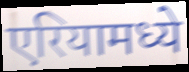
एरियामध्ये